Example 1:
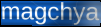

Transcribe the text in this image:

magchya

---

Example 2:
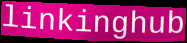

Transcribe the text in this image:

linkinghub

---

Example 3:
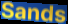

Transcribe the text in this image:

Sands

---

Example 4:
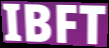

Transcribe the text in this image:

IBFT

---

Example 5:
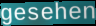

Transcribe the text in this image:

gesehen